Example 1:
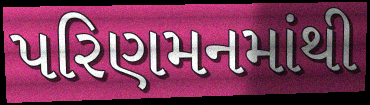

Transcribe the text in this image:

પરિણમનમાંથી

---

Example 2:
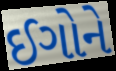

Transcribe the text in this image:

ઈગોને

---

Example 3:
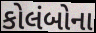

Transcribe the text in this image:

કોલંબોના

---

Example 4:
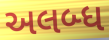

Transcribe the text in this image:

અલબ્ધ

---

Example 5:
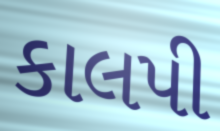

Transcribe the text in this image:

કાલપી